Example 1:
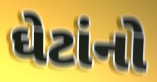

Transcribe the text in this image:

ઘેટાંનો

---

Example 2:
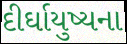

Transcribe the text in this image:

દીર્ઘાયુષ્યના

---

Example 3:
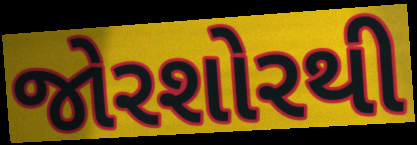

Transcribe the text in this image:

જોરશોરથી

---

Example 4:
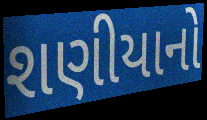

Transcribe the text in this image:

શણીયાનો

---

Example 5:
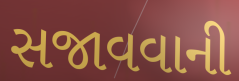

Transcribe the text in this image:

સજાવવાની